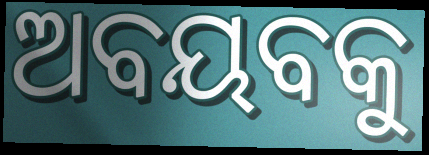
ଅବୟବକୁ